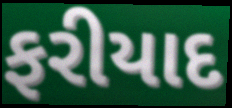
ફરીયાદ